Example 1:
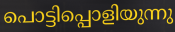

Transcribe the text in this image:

പൊട്ടിപ്പൊളിയുന്നു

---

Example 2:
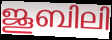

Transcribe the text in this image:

ജൂബിലി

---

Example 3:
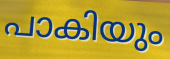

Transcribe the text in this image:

പാകിയും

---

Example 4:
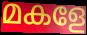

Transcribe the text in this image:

മകളേ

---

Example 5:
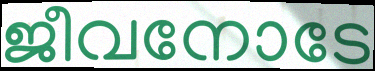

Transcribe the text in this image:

ജീവനോടേ